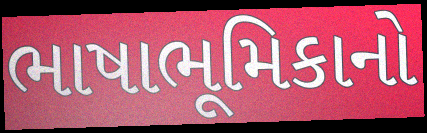
ભાષાભૂમિકાનો